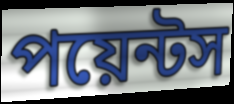
পয়েন্টস